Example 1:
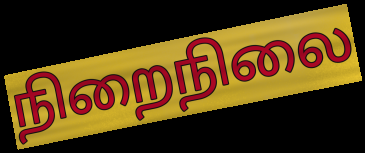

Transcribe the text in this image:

நிறைநிலை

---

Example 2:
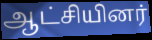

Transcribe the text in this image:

ஆட்சியினர்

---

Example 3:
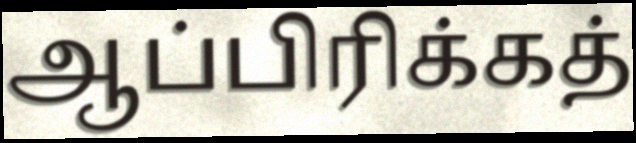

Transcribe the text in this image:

ஆப்பிரிக்கத்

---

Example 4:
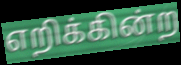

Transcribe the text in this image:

எறிக்கின்ற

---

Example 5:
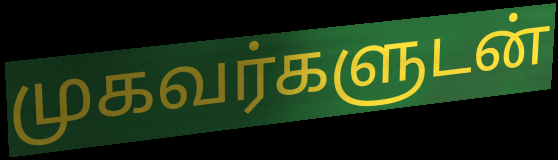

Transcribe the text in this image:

முகவர்களுடன்